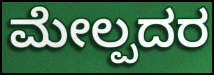
ಮೇಲ್ಪದರ